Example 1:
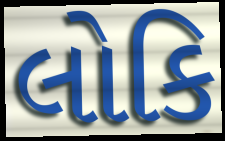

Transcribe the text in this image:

લોકિ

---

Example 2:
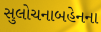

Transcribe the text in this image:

સુલોચનાબહેનના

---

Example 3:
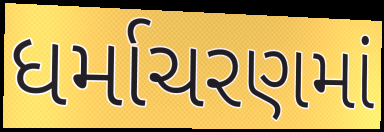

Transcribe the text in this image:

ધર્માચરણમાં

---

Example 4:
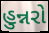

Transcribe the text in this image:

હુન્નરો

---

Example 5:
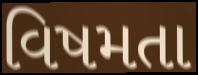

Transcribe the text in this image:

વિષમતા